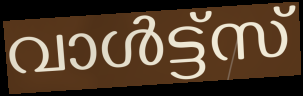
വാൾട്ട്സ്